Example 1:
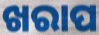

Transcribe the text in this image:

ଖରାପ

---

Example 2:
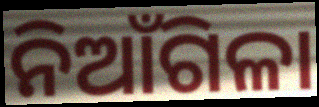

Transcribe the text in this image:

ନିଆଁଗିଳା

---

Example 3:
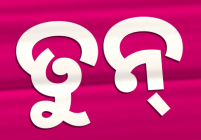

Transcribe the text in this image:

ତୁନ୍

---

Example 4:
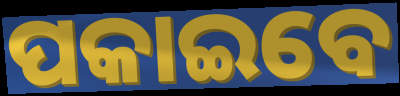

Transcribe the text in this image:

ପକାଇବେ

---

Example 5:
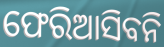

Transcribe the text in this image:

ଫେରିଆସିବନି